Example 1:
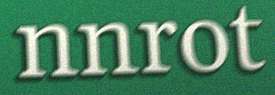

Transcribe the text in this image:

nnrot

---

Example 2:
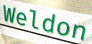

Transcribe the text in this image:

Weldon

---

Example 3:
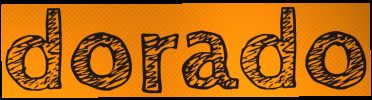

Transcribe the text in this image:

dorado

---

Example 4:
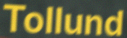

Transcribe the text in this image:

Tollund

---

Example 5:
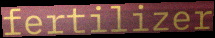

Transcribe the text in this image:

fertilizer